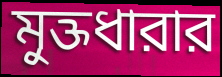
মুক্তধারার